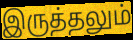
இருத்தலும்